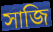
সাজি